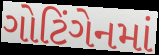
ગોટિંગેનમાં